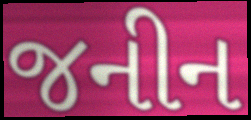
જનીન